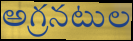
అగ్రనటుల